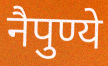
नैपुण्ये